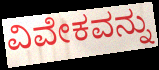
ವಿವೇಕವನ್ನು